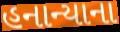
હનાન્યાના